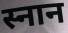
स्नान